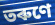
তৰুণে